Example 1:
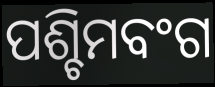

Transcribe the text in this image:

ପଶ୍ଚିମବଂଗ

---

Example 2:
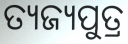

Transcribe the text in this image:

ତ୍ୟଜ୍ୟପୁତ୍ର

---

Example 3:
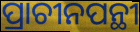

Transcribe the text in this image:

ପ୍ରାଚୀନପନ୍ଥୀ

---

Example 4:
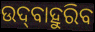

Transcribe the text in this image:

ଉଦ୍‌ବାହୁରିବ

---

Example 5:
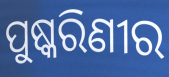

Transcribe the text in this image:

ପୁଷ୍କରିଣୀର